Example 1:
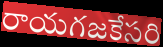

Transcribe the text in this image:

రాయగజకేసరి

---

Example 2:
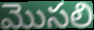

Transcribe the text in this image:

మొసలి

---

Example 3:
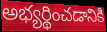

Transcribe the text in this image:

అభ్యర్థించడానికి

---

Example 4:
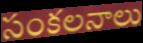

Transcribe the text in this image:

సంకలనాలు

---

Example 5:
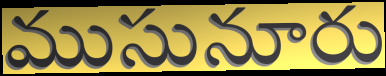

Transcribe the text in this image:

ముసునూరు